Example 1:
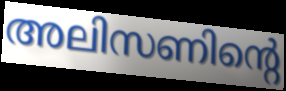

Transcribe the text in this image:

അലിസണിന്റെ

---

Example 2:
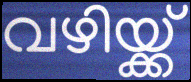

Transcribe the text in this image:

വഴിയ്ക്ക്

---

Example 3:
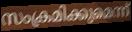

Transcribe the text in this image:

സംക്രമിക്കുമെന്ന്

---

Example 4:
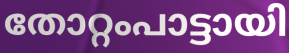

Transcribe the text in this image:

തോറ്റംപാട്ടായി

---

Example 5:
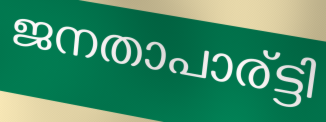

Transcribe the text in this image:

ജനതാപാര്ട്ടി